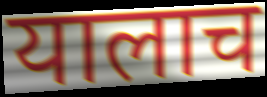
यालाच